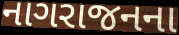
નાગરાજનના